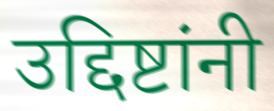
उद्दिष्टांनी